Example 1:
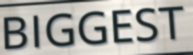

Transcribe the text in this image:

BIGGEST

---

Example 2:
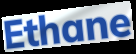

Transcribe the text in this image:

Ethane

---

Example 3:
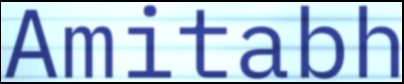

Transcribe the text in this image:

Amitabh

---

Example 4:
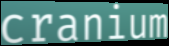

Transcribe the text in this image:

cranium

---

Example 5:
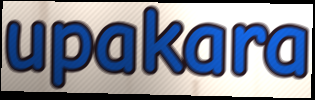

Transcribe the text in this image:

upakara